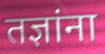
तज्ञांना